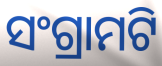
ସଂଗ୍ରାମଟି